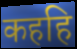
कहहि